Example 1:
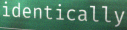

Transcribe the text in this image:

identically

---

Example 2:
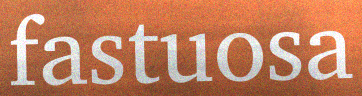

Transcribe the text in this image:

fastuosa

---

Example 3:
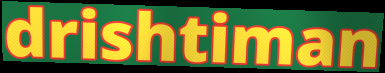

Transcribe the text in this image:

drishtiman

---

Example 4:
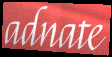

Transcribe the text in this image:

adnate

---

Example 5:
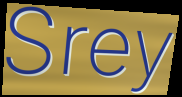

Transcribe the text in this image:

Srey